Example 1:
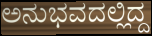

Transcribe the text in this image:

ಅನುಭವದಲ್ಲಿದ್ದ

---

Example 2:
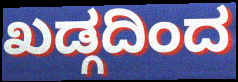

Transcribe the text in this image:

ಖಡ್ಗದಿಂದ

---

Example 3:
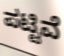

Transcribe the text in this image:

ಪಟ್ಟಿವೆ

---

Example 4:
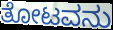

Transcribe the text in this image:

ತೋಟವನು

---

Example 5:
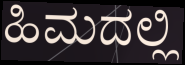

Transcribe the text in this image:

ಹಿಮದಲ್ಲಿ